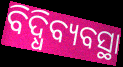
ବିଦ୍ଧିବ୍ୟବସ୍ଥା